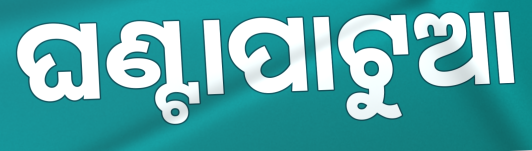
ଘଣ୍ଟାପାଟୁଆ